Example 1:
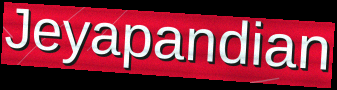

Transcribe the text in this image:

Jeyapandian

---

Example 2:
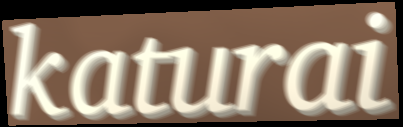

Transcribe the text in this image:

katurai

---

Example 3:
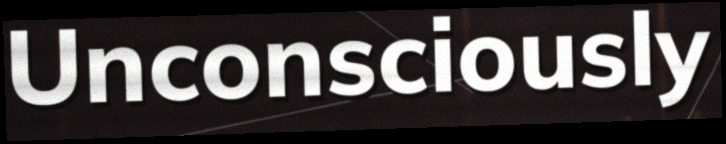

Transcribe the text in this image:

Unconsciously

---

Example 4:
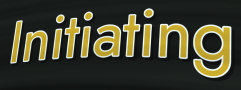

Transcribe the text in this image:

Initiating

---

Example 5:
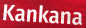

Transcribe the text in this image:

Kankana